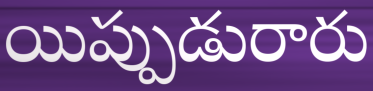
యిప్పుడురారు